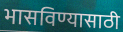
भासविण्यासाठी